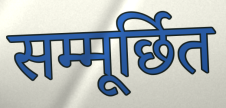
सम्मूर्छित